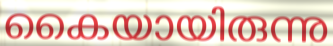
കൈയായിരുന്നു